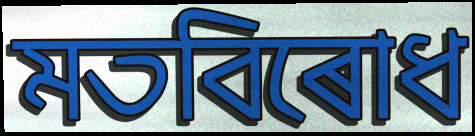
মতবিৰোধ